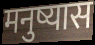
मनुष्यास